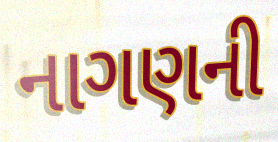
નાગણની